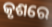
କୃଶରେ